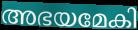
അഭയമേകി